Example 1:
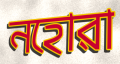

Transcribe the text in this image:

নহোৱা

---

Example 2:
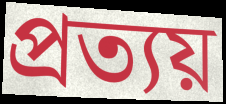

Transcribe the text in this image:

প্ৰত্যয়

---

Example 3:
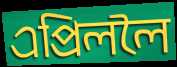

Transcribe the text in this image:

এপ্ৰিললৈ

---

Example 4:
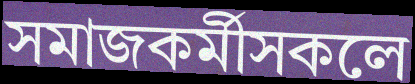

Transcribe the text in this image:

সমাজকৰ্মীসকলে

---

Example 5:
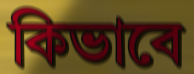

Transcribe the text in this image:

কিভাবে